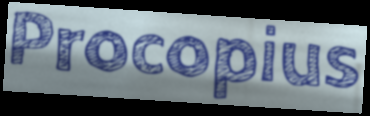
Procopius